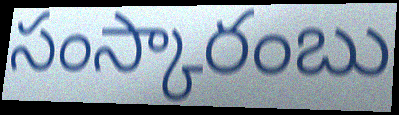
సంస్కారంబు